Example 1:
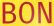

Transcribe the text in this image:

BON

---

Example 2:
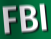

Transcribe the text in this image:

FBI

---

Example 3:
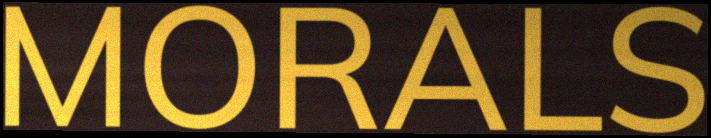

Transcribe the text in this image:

MORALS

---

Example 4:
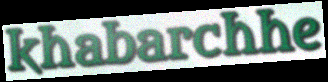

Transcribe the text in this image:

khabarchhe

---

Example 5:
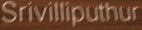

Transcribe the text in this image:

Srivilliputhur